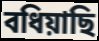
বধিয়াছি